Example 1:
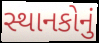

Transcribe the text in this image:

સ્થાનકોનું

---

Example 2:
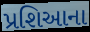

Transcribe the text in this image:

પ્રશિઆના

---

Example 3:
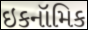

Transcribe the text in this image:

ઇકનૉમિક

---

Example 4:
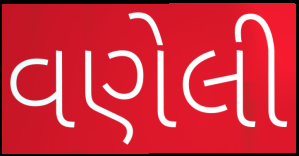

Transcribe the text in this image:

વણેલી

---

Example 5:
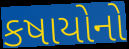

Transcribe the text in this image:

કષાયોનો